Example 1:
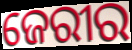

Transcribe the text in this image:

ଜେରୀର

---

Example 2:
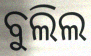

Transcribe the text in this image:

ବୁଲିଲ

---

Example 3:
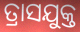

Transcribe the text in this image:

ତ୍ରାସଯୁକ୍ତ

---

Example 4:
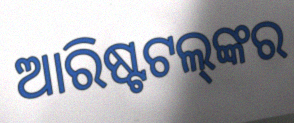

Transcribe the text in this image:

ଆରିଷ୍ଟଟଲ୍‌ଙ୍କର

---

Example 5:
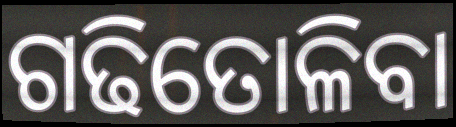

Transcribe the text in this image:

ଗଢିତୋଳିବା